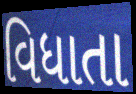
વિધાતા